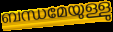
ബന്ധമേയുള്ളു